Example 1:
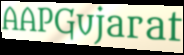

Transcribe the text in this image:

AAPGujarat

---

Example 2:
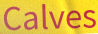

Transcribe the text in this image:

Calves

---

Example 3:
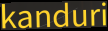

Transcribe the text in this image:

kanduri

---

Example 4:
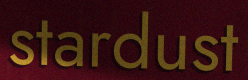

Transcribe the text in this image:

stardust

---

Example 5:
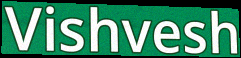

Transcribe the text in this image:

Vishvesh